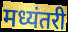
मध्यंतरी